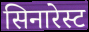
सिनारेस्ट